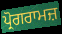
ਪ੍ਰੋਗਰਾਮਜ਼